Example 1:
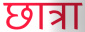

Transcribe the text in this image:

छात्रा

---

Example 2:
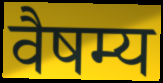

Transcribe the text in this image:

वैषम्य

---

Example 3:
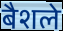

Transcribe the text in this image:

बैशले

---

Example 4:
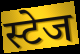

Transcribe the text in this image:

स्टेज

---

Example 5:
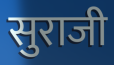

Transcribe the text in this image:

सुराजी